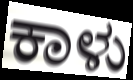
ಕಾಳು